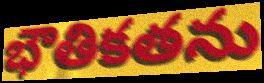
భౌతికతను